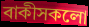
বাকীসকলো